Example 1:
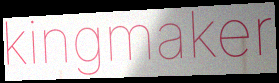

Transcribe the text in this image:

kingmaker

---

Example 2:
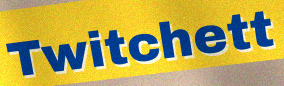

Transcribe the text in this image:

Twitchett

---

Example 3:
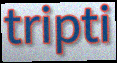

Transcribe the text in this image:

tripti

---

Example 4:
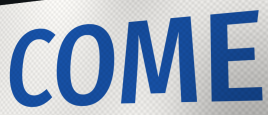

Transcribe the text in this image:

COME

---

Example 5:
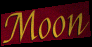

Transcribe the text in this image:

Moon